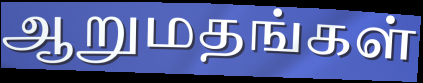
ஆறுமதங்கள்